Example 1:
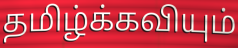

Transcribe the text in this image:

தமிழ்க்கவியும்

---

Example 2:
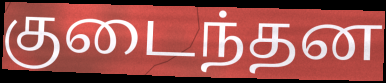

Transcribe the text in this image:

குடைந்தன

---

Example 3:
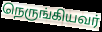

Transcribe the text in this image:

நெருங்கியவர்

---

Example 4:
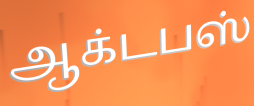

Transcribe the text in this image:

ஆக்டபஸ்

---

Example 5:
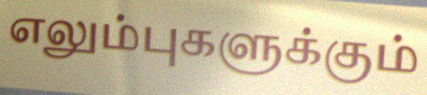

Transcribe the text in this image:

எலும்புகளுக்கும்